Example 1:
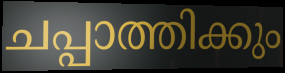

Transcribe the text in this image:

ചപ്പാത്തിക്കും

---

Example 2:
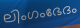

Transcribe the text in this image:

ലിംഗംഭേദം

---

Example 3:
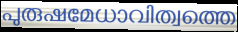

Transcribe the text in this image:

പുരുഷമേധാവിത്വത്തെ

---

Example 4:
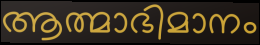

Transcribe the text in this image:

ആത്മാഭിമാനം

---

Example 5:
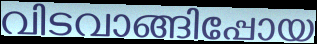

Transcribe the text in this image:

വിടവാങ്ങിപ്പോയ